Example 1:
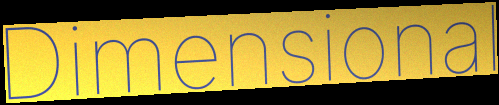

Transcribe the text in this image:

Dimensional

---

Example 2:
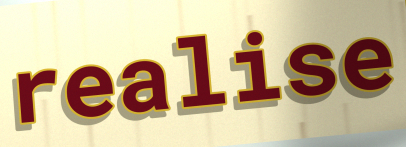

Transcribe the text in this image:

realise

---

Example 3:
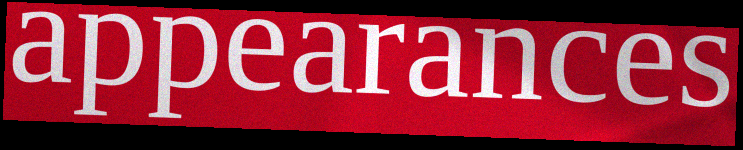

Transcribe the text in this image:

appearances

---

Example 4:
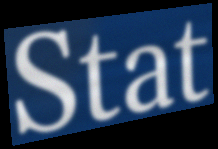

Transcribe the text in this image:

Stat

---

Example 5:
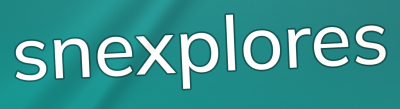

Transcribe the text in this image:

snexplores